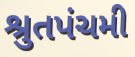
શ્રુતપંચમી